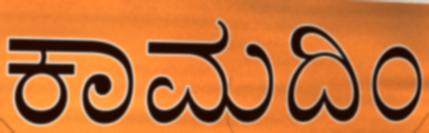
ಕಾಮದಿಂ